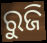
ରୁଜି